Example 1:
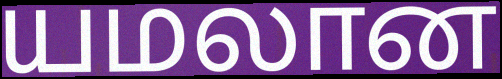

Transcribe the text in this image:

யமலான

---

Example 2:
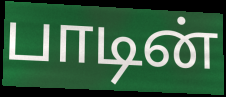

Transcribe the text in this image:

பாடின்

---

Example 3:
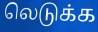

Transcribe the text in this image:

லெடுக்க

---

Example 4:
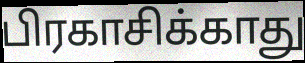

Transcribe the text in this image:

பிரகாசிக்காது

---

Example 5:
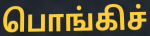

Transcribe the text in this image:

பொங்கிச்